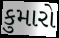
કુમારો